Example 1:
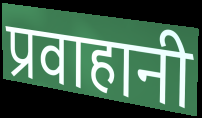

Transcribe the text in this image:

प्रवाहानी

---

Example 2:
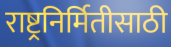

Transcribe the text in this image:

राष्ट्रनिर्मितीसाठी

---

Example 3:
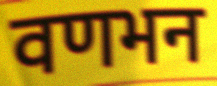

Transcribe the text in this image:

वणभन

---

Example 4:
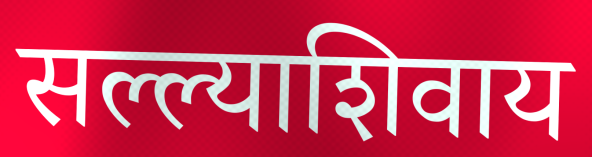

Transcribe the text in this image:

सल्ल्याशिवाय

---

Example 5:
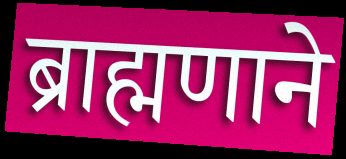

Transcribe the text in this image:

ब्राह्मणाने